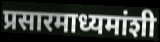
प्रसारमाध्यमांशी